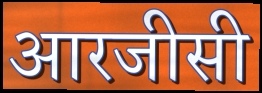
आरजीसी